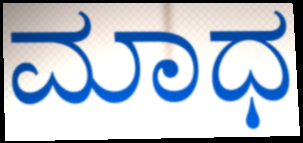
ಮಾಧ